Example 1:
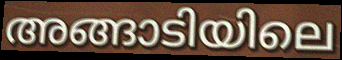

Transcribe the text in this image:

അങ്ങാടിയിലെ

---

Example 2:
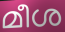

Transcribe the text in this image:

മീശ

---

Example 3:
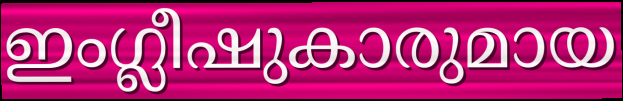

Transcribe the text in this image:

ഇംഗ്ലീഷുകാരുമായ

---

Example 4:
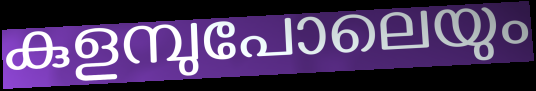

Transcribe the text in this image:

കുളമ്പുപോലെയും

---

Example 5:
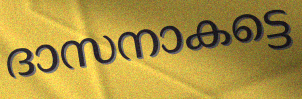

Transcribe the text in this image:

ദാസനാകട്ടെ